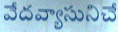
వేదవ్యాసునిచే